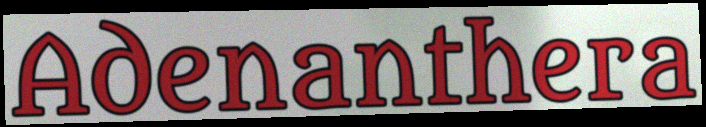
Adenanthera